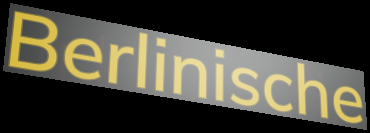
Berlinische